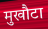
मुखौटा